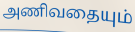
அணிவதையும்